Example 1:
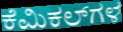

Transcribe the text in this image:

ಕೆಮಿಕಲ್‌ಗಳ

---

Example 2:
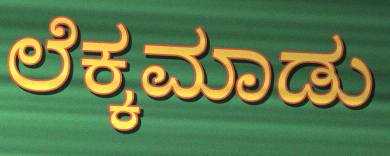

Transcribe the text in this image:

ಲೆಕ್ಕಮಾಡು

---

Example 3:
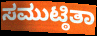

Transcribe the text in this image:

ಸಮುಟ್ಠಿತಾ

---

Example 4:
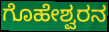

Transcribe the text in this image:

ಗೊಹೇಶ್ವರನ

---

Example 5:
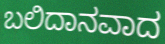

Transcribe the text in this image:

ಬಲಿದಾನವಾದ